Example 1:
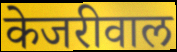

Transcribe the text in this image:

केजरीवाल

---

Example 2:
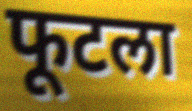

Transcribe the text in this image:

फूटला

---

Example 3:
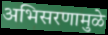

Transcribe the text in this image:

अभिसरणामुळे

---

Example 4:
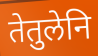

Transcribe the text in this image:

तेतुलेनि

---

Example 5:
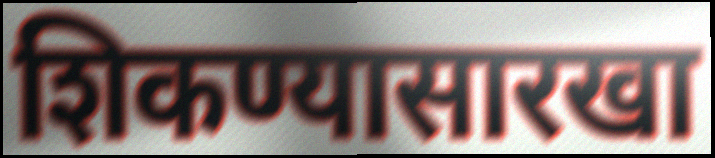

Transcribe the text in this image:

शिकण्यासारखा